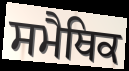
ਸਮੈਥਿਕ